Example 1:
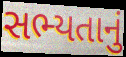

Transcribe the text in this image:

સભ્યતાનું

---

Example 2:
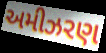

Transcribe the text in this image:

અમીઝરણ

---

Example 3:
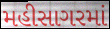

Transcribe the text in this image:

મહીસાગરમાં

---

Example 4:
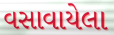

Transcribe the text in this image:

વસાવાયેલા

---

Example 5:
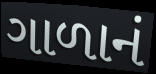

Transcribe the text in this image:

ગાળાનં